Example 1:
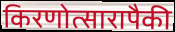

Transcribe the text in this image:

किरणोत्सारापैकी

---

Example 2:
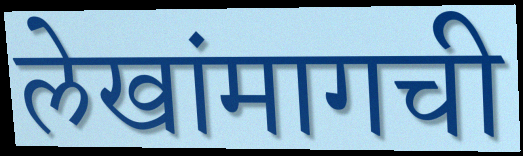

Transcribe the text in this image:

लेखांमागची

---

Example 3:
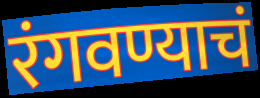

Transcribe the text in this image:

रंगवण्याचं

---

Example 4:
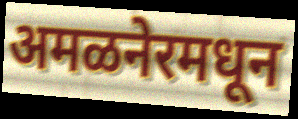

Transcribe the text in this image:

अमळनेरमधून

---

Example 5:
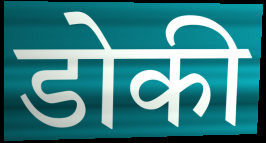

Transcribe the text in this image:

डोकी